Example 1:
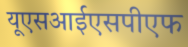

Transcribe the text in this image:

यूएसआईएसपीएफ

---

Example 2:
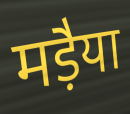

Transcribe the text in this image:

मड़ैया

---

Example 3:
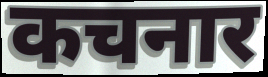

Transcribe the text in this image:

कचनार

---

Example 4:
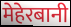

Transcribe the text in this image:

मेहेरबानी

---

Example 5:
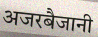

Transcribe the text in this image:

अजरबैजानी